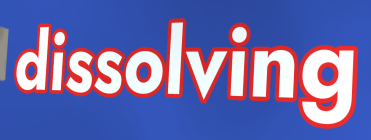
dissolving